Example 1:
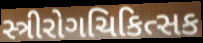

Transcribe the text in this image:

સ્ત્રીરોગચિકિત્સક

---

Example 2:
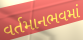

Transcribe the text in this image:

વર્તમાનભવમાં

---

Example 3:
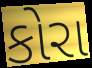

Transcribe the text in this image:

કોરા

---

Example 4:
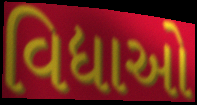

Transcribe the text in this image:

વિદ્યાઓ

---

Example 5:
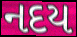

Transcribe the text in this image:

નદય